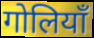
गोलियाँ